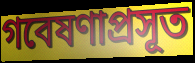
গবেষণাপ্রসূত